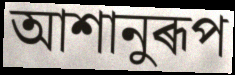
আশানুৰূপ